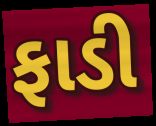
ફાડી